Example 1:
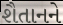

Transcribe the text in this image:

શૈતાનને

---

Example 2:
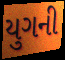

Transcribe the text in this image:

યુગની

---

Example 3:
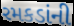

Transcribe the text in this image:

રમકડાંની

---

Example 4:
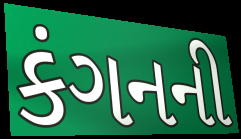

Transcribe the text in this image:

કંગનની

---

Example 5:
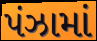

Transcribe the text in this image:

પંઝામાં